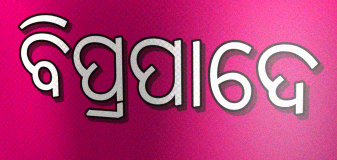
ବିପ୍ରପାଦେ